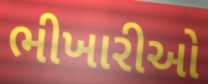
ભીખારીઓ